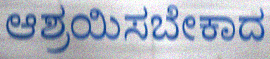
ಆಶ್ರಯಿಸಬೇಕಾದ